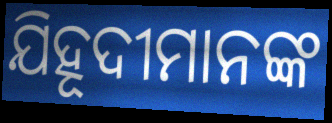
ଯିହୂଦୀମାନଙ୍କ